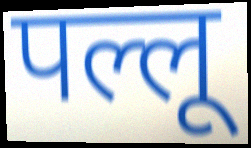
पल्लू